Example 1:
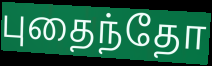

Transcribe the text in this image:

புதைந்தோ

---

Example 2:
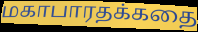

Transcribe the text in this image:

மகாபாரதக்கதை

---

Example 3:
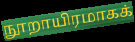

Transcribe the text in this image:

நூறாயிரமாகக்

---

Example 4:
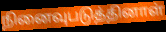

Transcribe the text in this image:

நினைவுபடுத்தினாள்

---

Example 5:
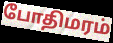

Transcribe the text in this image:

போதிமரம்